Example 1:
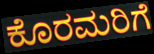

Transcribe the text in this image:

ಕೊರಮರಿಗೆ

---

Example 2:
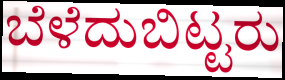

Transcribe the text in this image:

ಬೆಳೆದುಬಿಟ್ಟರು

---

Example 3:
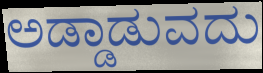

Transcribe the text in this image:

ಅಡ್ಡಾಡುವದು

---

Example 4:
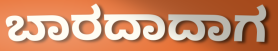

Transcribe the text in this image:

ಬಾರದಾದಾಗ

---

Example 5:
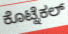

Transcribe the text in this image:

ಕೊಟ್ನೆಕಲ್